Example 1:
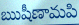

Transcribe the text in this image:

ఋషీణామపి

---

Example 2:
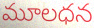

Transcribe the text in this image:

మూలధన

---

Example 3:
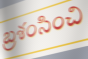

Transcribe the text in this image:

బ్రశంసించి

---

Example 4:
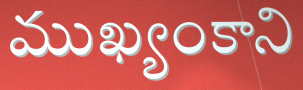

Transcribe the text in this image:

ముఖ్యంకాని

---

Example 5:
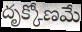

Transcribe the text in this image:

దృక్కోణమే